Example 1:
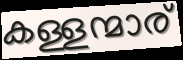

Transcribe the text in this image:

കള്ളന്മാര്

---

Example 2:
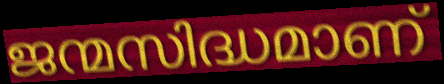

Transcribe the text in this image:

ജന്മസിദ്ധമാണ്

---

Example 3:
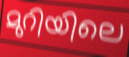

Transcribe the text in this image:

മുറിയിലെ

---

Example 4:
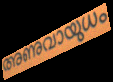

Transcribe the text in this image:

അണുവായുധം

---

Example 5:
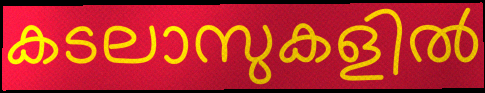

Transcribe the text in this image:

കടലാസുകളിൽ